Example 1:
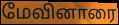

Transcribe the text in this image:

மேவினாரை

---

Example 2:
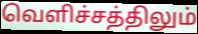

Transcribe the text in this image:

வெளிச்சத்திலும்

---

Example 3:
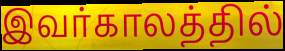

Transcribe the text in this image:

இவர்காலத்தில்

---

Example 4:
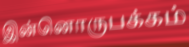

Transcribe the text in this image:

இன்னொருபக்கம்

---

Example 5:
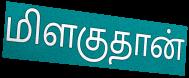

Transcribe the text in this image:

மிளகுதான்